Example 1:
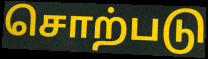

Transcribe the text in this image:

சொற்படு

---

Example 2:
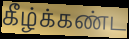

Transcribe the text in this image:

கீழ்க்கண்ட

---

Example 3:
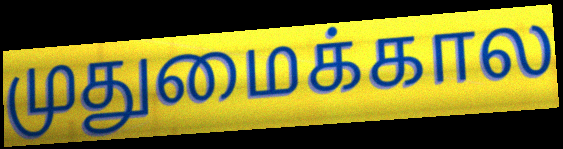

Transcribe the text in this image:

முதுமைக்கால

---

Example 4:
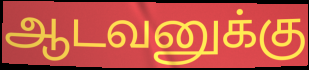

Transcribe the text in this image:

ஆடவனுக்கு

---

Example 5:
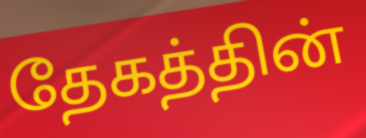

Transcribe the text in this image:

தேகத்தின்